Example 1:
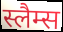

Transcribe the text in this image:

स्लैम्स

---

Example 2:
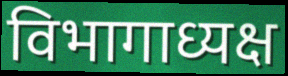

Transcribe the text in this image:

विभागाध्यक्ष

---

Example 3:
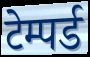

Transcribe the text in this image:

टेम्पर्ड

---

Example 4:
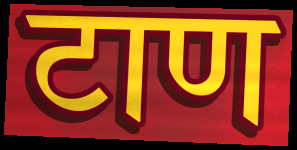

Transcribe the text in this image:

टाण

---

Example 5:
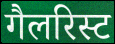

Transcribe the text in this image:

गैलरिस्ट